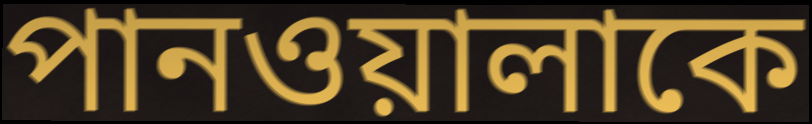
পানওয়ালাকে